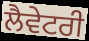
ਲੈਵੇਟਰੀ